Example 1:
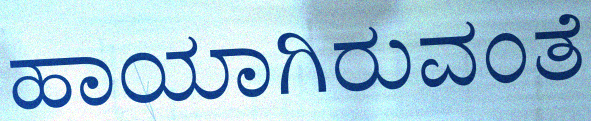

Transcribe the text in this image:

ಹಾಯಾಗಿರುವಂತೆ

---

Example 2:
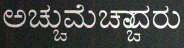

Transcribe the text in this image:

ಅಚ್ಚುಮೆಚ್ಚಾದರು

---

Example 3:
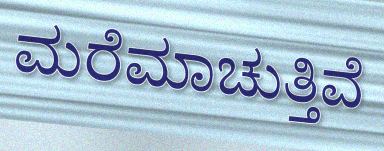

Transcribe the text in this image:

ಮರೆಮಾಚುತ್ತಿವೆ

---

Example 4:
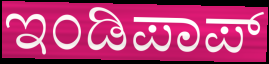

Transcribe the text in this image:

ಇಂಡಿಪಾಪ್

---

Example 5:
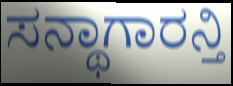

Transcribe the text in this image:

ಸನ್ಥಾಗಾರನ್ತಿ